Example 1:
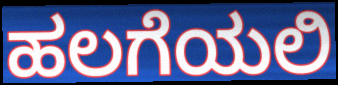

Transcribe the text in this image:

ಹಲಗೆಯಲಿ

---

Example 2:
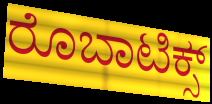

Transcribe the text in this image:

ರೊಬಾಟಿಕ್ಸ್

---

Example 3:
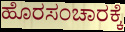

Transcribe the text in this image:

ಹೊರಸಂಚಾರಕ್ಕೆ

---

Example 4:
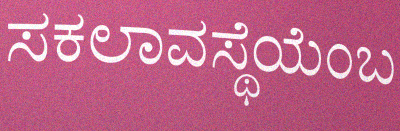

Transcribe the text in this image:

ಸಕಲಾವಸ್ಥೆಯೆಂಬ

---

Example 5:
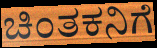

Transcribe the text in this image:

ಚಿಂತಕನಿಗೆ